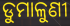
ଡୁମାଳୁଣୀ